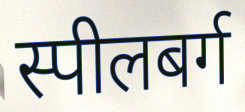
स्पीलबर्ग